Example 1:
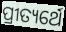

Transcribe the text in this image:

ପ୍ରୀତ୍ୟର୍ଥେ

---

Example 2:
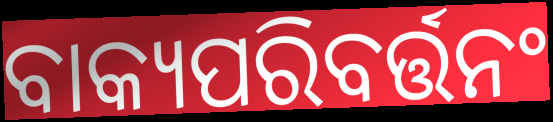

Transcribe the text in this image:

ବାକ୍ୟପରିବର୍ତ୍ତନଂ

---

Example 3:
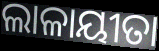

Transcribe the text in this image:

ଲାଳାୟୀତା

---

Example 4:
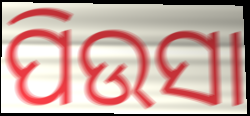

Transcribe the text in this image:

ପିଉସା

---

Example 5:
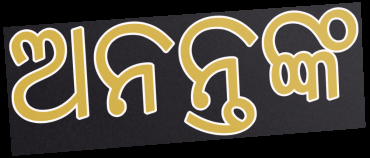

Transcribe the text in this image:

ଅନନ୍ତଙ୍କ